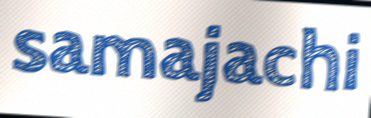
samajachi